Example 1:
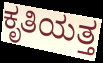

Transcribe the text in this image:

ಕೃತಿಯತ್ತ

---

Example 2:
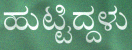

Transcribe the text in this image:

ಹುಟ್ಟಿದ್ದಳು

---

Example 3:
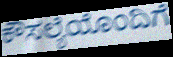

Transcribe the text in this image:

ಕೌಸಲ್ಯೆಯೊಂದಿಗೆ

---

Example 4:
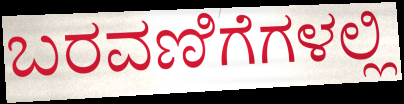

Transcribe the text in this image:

ಬರವಣಿಗೆಗಳಲ್ಲಿ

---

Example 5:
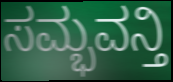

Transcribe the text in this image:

ಸಮ್ಭವನ್ತಿ